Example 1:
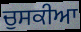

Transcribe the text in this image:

ਚੁਸਕੀਆ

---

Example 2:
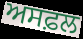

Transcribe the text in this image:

ਅਸਫ਼ਲ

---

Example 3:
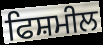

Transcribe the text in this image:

ਫਿਸ਼ਮੀਲ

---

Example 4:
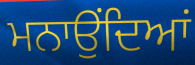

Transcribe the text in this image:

ਮਨਾਉਂਦਿਆਂ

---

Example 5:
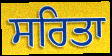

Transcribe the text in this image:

ਸਰਿਤਾ